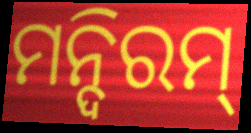
ମନ୍ଦିରମ୍